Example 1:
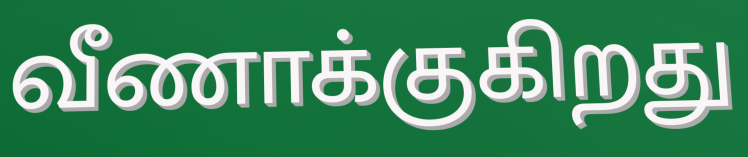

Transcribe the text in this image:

வீணாக்குகிறது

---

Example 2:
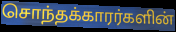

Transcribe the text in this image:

சொந்தக்காரர்களின்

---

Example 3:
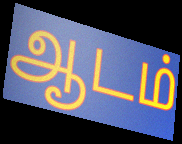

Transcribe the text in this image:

ஆடம்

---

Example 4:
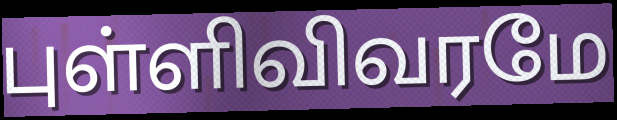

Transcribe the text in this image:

புள்ளிவிவரமே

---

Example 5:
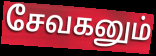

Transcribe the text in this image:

சேவகனும்